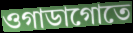
ওগাডাগোতে